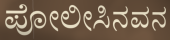
ಪೋಲೀಸಿನವನ